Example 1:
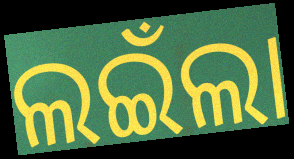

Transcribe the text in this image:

ଲଇଁଲା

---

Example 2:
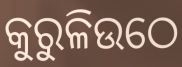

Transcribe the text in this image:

କୁରୁଳିଉଠେ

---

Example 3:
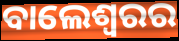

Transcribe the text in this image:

ବାଲେଶ୍ୱରର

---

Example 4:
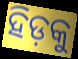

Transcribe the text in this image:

ହିଡ଼କୁ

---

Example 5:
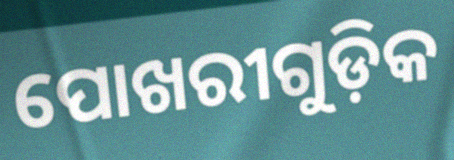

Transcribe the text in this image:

ପୋଖରୀଗୁଡ଼ିକ